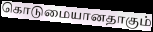
கொடுமையானதாகும்